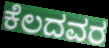
ಕೆಲದವರ